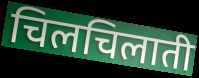
चिलचिलाती